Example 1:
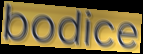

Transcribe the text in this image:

bodice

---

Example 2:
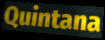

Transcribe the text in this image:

Quintana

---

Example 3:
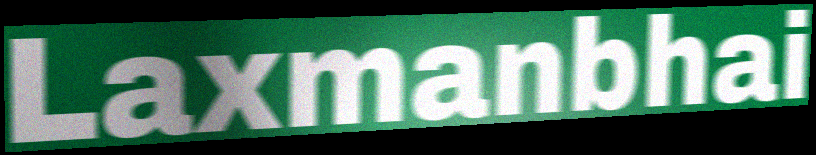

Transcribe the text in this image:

Laxmanbhai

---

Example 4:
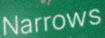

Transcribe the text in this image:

Narrows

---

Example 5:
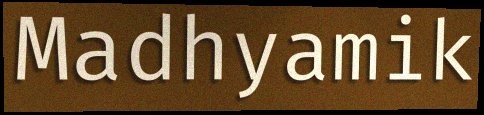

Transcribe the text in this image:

Madhyamik